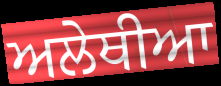
ਅਲੇਥੀਆ